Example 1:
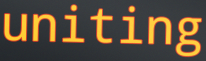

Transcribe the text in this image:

uniting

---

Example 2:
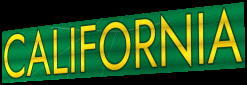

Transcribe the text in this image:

CALIFORNIA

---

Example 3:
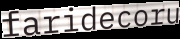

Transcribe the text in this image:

faridecoru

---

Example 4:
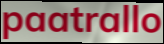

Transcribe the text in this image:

paatrallo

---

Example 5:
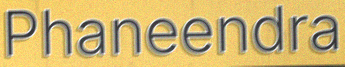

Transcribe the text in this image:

Phaneendra